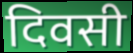
दिवसी